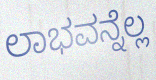
ಲಾಭವನ್ನೆಲ್ಲ